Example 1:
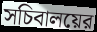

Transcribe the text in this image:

সচিবালয়ের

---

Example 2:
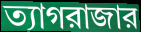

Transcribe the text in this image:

ত্যাগরাজার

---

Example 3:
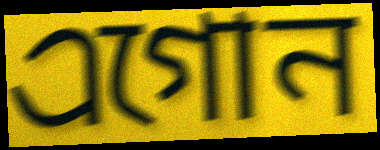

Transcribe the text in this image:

এগোন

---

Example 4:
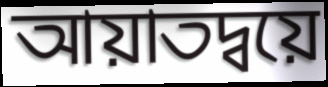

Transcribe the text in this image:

আয়াতদ্বয়ে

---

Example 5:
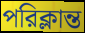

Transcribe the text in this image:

পরিক্লান্ত